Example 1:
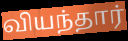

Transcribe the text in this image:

வியந்தார்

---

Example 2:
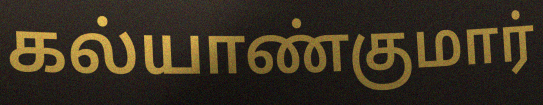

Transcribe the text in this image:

கல்யாண்குமார்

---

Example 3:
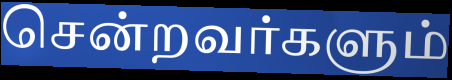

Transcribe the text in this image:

சென்றவர்களும்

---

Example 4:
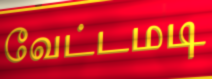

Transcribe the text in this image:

வேட்டமடி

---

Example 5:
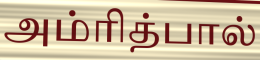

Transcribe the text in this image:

அம்ரித்பால்